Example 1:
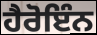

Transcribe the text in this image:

ਹੈਰੋਇੰਨ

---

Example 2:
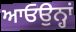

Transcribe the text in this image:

ਆਓਉਨ੍ਹਾਂ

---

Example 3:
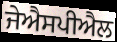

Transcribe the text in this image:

ਜੇਐਸਪੀਐਲ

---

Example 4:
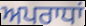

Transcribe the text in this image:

ਅਪਰਾਧਾਂ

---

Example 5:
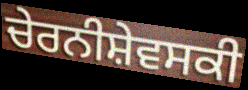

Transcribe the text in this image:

ਚੇਰਨੀਸ਼ੇਵਸਕੀ